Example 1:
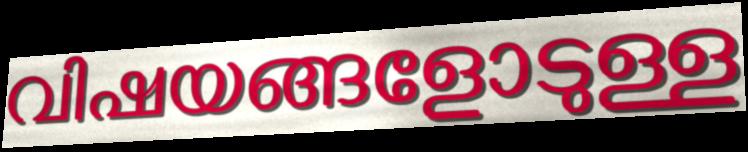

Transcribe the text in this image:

വിഷയങ്ങളോടുള്ള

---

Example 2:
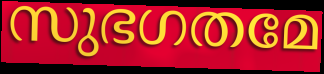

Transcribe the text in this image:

സുഭഗതമേ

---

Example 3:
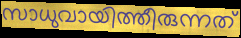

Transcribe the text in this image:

സാധുവായിത്തീരുന്നത്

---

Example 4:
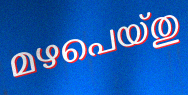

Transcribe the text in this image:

മഴപെയ്തു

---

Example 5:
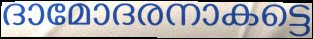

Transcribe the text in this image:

ദാമോദരനാകട്ടെ